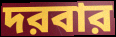
দরবার